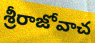
శ్రీరాజోవాచ